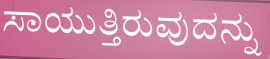
ಸಾಯುತ್ತಿರುವುದನ್ನು